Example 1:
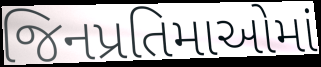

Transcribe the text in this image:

જિનપ્રતિમાઓમાં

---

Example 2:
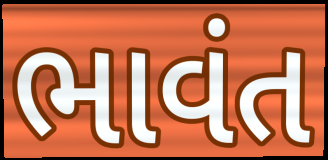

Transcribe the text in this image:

ભાવંત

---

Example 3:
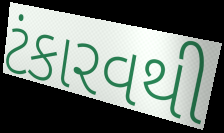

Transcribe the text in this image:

ટંકારવથી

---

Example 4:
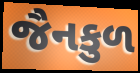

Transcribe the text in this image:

જૈનકુળ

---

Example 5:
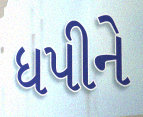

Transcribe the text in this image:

ધપીને